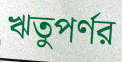
ঋতুপর্ণর